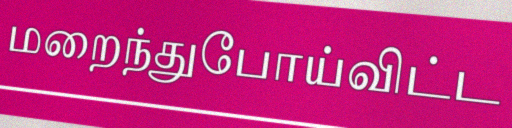
மறைந்துபோய்விட்ட